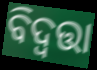
ବିଦ୍ୱତ୍ତା